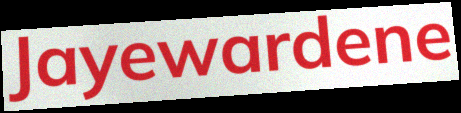
Jayewardene